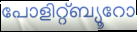
പോളിറ്റ്ബ്യൂറോ